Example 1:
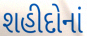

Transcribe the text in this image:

શહીદોનાં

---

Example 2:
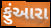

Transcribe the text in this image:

ફુંઆરા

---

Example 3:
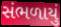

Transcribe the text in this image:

સંભળાયું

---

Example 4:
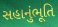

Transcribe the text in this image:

સહાનુંભૂતિ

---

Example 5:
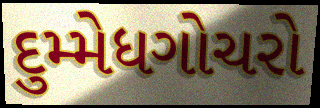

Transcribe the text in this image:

દુમ્મેધગોચરો